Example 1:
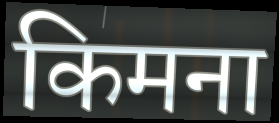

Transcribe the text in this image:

किमना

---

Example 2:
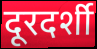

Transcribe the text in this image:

दूरदर्शी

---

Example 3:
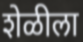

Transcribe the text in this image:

शेळीला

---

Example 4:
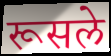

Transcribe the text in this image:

रूसले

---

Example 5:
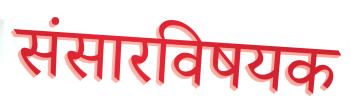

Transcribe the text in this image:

संसारविषयक